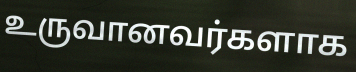
உருவானவர்களாக